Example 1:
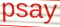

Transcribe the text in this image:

psay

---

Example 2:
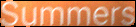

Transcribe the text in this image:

Summers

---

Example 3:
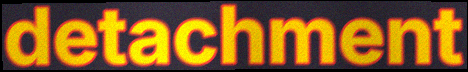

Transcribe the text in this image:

detachment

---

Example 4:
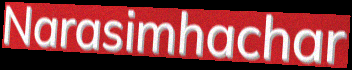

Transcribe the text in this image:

Narasimhachar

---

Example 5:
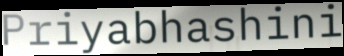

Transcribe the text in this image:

Priyabhashini